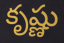
కృష్ణు